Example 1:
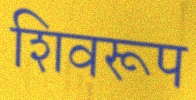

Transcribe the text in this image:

शिवरूप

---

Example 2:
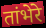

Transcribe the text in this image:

तांभेरे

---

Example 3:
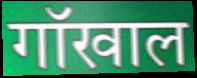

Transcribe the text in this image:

गॉखाल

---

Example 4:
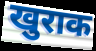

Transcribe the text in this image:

खुराक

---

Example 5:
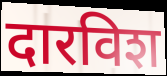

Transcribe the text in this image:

दारविश